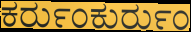
ಕರ್ರುಂಕುರ್ರುಂ